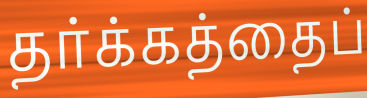
தர்க்கத்தைப்